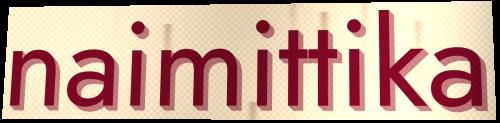
naimittika